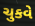
ચુકવે